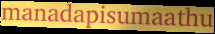
manadapisumaathu